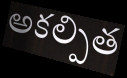
అకల్పిత